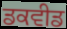
ਡਕਵੀਡ